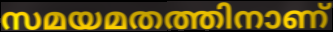
സമയമതത്തിനാണ്